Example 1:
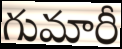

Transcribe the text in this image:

గుమారీ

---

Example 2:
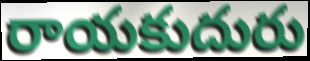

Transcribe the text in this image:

రాయకుదురు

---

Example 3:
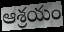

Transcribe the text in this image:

ఆశ్రయం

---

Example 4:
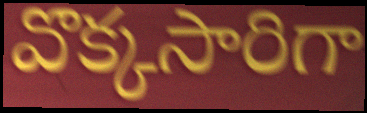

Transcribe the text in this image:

వొక్కసారిగా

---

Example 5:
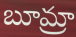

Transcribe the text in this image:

బూమ్రా